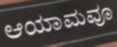
ಆಯಾಮವೂ